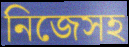
নিজেসহ